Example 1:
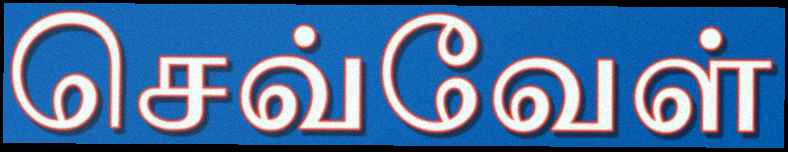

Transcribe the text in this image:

செவ்வேள்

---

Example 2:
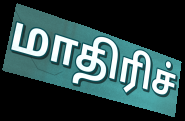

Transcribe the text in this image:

மாதிரிச்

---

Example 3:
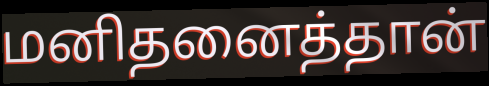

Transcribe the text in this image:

மனிதனைத்தான்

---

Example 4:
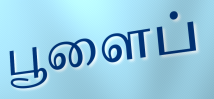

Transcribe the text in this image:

பூளைப்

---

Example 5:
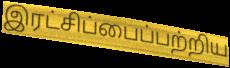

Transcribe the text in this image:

இரட்சிப்பைப்பற்றிய